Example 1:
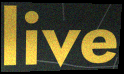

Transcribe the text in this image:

live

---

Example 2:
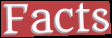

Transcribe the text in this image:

Facts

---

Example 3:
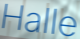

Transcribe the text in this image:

Halle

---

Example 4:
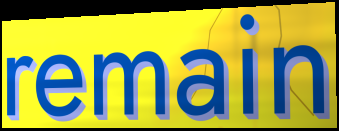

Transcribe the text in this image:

remain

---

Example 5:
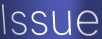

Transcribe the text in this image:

Issue